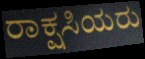
ರಾಕ್ಷಸಿಯರು